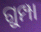
ଗୁମ୍ପା